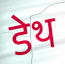
डेथ